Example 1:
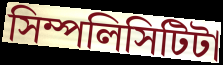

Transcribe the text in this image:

সিম্পলিসিটিটা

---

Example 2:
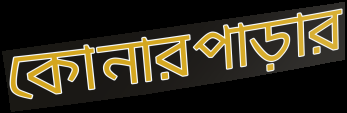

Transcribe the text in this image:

কোনারপাড়ার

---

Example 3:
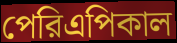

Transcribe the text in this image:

পেরিএপিকাল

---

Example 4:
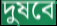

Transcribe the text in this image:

দুষবে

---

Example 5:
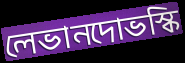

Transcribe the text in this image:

লেভানদোভস্কি